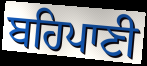
ਬਹਿਪਾਣੀ